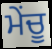
ਮੇਂਚੂ